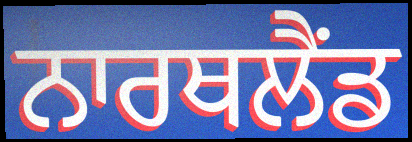
ਨਾਰਥਲੈਂਡ